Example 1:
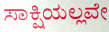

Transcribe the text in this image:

ಸಾಕ್ಷಿಯಲ್ಲವೇ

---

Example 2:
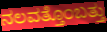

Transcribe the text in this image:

ನಲವತ್ತೊಂಬತ್ತು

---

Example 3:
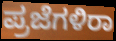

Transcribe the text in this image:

ಪ್ರಜೆಗಳಿರಾ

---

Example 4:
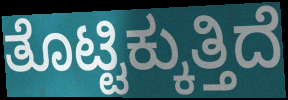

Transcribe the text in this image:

ತೊಟ್ಟಿಕ್ಕುತ್ತಿದೆ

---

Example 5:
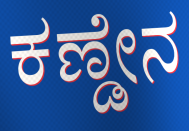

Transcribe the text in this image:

ಕಣ್ಡೇನ